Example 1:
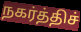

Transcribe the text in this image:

நகர்த்திச்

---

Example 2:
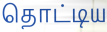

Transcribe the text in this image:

தொட்டிய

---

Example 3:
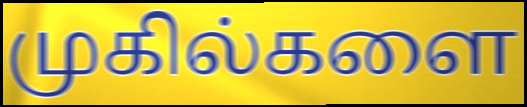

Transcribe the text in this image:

முகில்களை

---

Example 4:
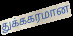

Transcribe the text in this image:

துக்ககரமான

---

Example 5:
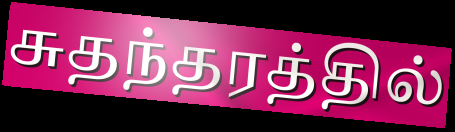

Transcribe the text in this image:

சுதந்தரத்தில்